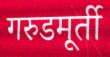
गरुडमूर्ती